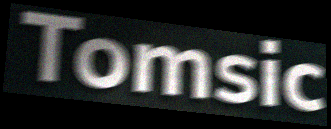
Tomsic